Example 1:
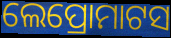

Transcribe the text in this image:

ଲେପ୍ରୋମାଟସ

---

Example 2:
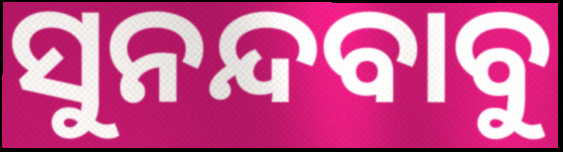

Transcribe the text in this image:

ସୁନନ୍ଦବାବୁ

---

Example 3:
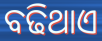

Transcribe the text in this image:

ବଢିଥାଏ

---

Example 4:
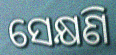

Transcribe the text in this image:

ସେକ୍ଷଣି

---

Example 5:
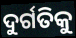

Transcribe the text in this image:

ଦୁର୍ଗତିକୁ